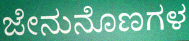
ಜೇನುನೊಣಗಳ